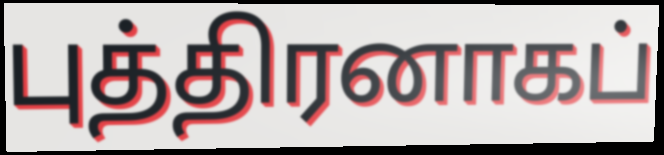
புத்திரனாகப்